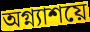
অগ্ন্যাশয়ে